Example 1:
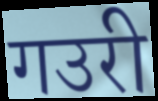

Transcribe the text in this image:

गउरी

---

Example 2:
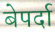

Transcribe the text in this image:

बेपर्दा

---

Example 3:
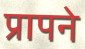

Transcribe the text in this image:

प्रापने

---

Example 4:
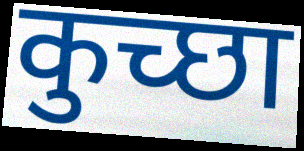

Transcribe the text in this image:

कुच्छा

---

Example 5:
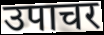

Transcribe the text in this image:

उपाचर